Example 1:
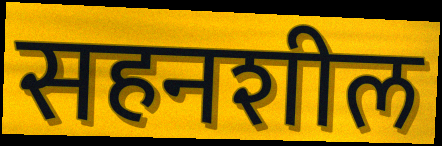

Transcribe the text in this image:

सहनशील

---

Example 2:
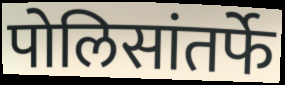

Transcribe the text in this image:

पोलिसांतर्फे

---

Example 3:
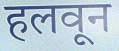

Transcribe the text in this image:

हलवून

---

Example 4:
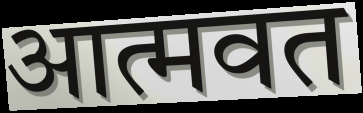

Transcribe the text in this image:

आत्मवत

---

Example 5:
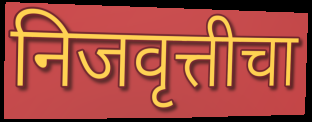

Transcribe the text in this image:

निजवृत्तीचा